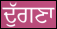
ਦੁੱਗਣਾ